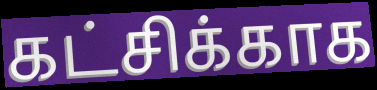
கட்சிக்காக